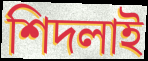
শিদলাই